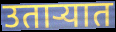
उताऱ्यात